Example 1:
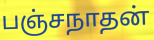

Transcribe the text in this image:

பஞ்சநாதன்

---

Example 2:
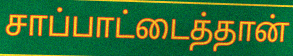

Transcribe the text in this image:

சாப்பாட்டைத்தான்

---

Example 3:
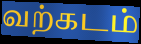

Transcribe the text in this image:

வற்கடம்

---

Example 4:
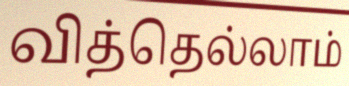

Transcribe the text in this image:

வித்தெல்லாம்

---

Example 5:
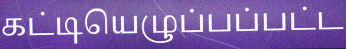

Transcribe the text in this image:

கட்டியெழுப்பப்பட்ட